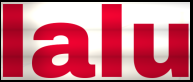
lalu